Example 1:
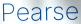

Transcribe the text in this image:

Pearse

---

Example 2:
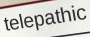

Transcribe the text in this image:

telepathic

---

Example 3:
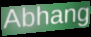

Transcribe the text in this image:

Abhang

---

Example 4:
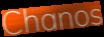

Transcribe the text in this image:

Chanos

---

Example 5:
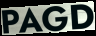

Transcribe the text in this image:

PAGD